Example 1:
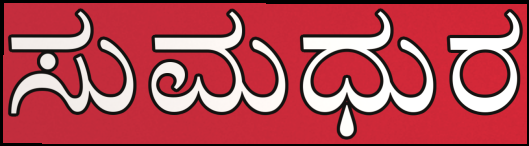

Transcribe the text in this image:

ಸುಮಧುರ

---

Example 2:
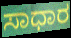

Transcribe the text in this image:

ಸಾಧಾರ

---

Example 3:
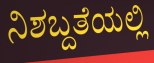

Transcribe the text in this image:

ನಿಶಬ್ದತೆಯಲ್ಲಿ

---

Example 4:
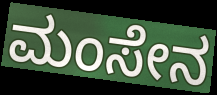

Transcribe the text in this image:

ಮಂಸೇನ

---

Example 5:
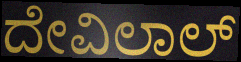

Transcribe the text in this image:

ದೇವಿಲಾಲ್